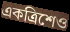
একত্রিশেও